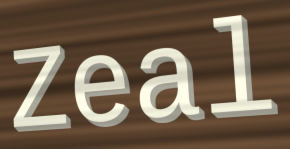
Zeal